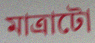
মাত্ৰাটো